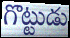
గొట్టుడు